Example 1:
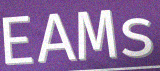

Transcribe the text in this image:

EAMs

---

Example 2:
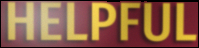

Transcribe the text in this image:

HELPFUL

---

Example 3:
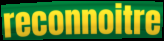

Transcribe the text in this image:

reconnoitre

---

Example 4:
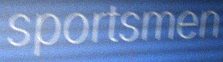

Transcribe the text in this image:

sportsmen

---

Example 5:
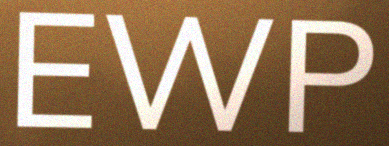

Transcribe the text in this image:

EWP